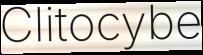
Clitocybe